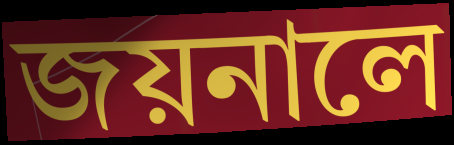
জয়নালে